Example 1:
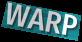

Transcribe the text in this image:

WARP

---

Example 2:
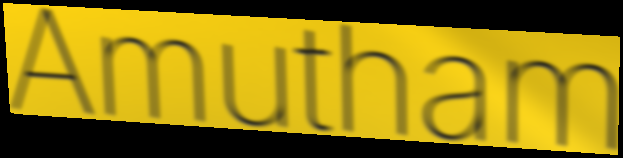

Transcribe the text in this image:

Amutham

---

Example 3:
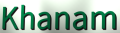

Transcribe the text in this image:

Khanam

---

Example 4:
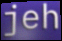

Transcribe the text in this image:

jeh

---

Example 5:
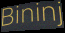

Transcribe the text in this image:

Bininj